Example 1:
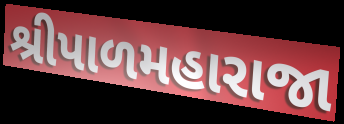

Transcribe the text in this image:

શ્રીપાળમહારાજા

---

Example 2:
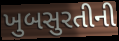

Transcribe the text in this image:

ખુબસુરતીની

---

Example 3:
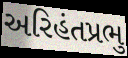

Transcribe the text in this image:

અરિહંતપ્રભુ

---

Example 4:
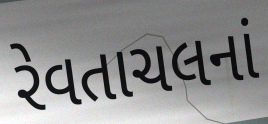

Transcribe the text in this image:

રેવતાચલનાં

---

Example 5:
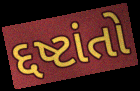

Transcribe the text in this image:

દ્દષ્ટાંતો